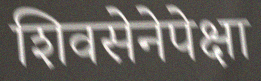
शिवसेनेपेक्षा